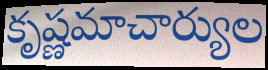
కృష్ణమాచార్యుల